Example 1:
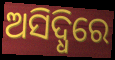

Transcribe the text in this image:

ଅସିଦ୍ଧିରେ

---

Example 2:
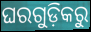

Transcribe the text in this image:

ଘରଗୁଡ଼ିକରୁ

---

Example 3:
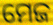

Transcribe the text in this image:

ମେଜ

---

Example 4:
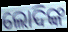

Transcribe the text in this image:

ଲୋଦିଙ୍କ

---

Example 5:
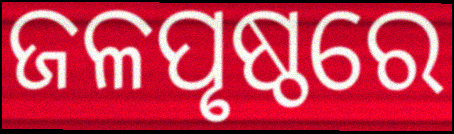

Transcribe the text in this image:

ଜଳପୃଷ୍ଠରେ